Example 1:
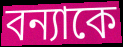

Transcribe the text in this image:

বন্যাকে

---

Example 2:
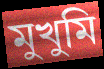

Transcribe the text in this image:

মুখুমি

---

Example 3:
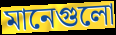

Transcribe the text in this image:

মানেগুলো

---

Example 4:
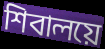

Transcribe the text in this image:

শিবালয়ে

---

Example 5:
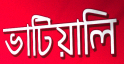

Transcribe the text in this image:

ভাটিয়ালি